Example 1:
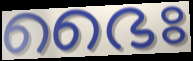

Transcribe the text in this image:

ഭൈഃ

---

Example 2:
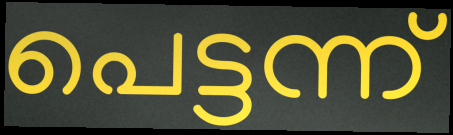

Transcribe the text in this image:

പെട്ടന്ന്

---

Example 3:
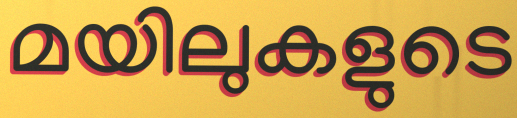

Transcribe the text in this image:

മയിലുകളുടെ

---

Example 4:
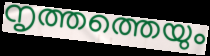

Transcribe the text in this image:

നൃത്തത്തെയും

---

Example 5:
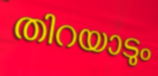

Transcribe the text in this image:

തിറയാടും